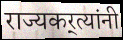
राज्यकर्त्यांनी